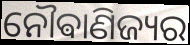
ନୌଵାଣିଜ୍ୟର